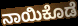
ನಾಯಿಕೊಡೆ